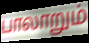
பாலாறும்